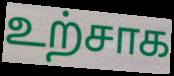
உற்சாக